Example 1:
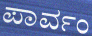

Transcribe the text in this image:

ಪಾರ್ವಂ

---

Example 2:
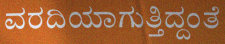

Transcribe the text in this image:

ವರದಿಯಾಗುತ್ತಿದ್ದಂತೆ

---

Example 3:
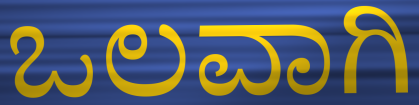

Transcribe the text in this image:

ಒಲವಾಗಿ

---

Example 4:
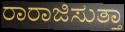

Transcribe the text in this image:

ರಾರಾಜಿಸುತ್ತಾ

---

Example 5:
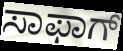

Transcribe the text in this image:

ಸಾಫಾಗ್